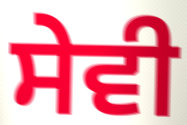
ਸੇਵੀ